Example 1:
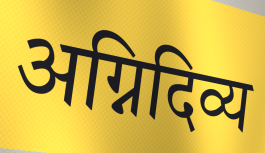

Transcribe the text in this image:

अग्निदिव्य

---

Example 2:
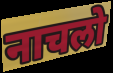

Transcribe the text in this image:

नाचलो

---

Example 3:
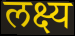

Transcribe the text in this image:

लक्ष्य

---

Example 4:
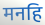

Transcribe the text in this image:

मनहि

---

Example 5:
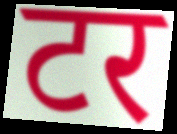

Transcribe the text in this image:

टर